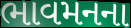
ભાવમનના